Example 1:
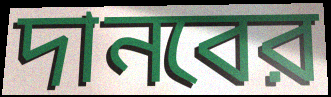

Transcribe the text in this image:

দানবের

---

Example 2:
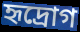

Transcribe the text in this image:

হৃদ্রোগ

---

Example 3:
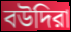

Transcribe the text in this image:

বউদিরা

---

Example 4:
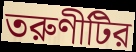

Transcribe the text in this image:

তরুণীটির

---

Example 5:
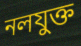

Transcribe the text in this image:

নলযুক্ত